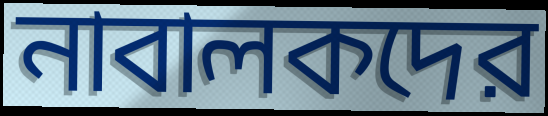
নাবালকদের